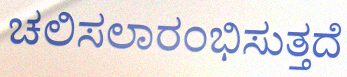
ಚಲಿಸಲಾರಂಭಿಸುತ್ತದೆ